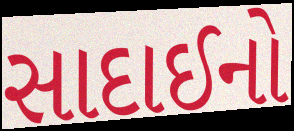
સાદાઈનો